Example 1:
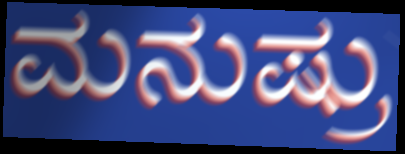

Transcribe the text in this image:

ಮನುಷ್ರು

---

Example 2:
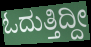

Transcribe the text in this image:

ಓದುತ್ತಿದ್ದೀ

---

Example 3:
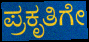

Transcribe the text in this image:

ಪ್ರಕೃತಿಗೇ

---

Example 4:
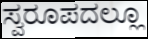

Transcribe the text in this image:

ಸ್ವರೂಪದಲ್ಲೂ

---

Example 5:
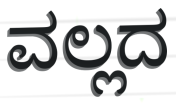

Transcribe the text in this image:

ವಲ್ಲದ